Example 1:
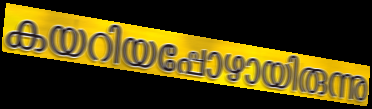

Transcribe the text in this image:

കയറിയപ്പോഴായിരുന്നു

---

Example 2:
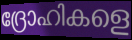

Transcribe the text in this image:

ദ്രോഹികളെ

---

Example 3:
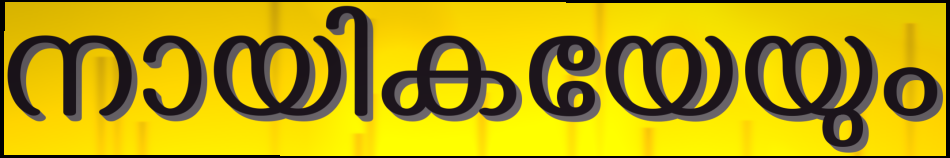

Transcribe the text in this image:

നായികയേയും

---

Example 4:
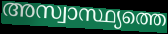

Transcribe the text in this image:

അസ്വാസ്ഥ്യത്തെ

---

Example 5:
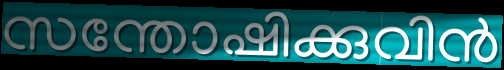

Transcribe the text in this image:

സന്തോഷിക്കുവിൻ